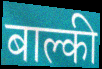
बाल्की